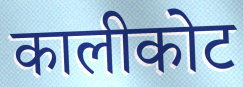
कालीकोट